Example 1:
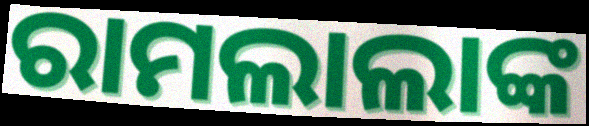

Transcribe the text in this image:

ରାମଲାଲାଙ୍କ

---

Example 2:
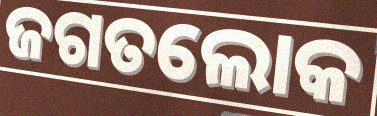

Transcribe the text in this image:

ଜଗତଲୋକ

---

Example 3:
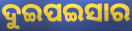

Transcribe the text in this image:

ଦୁଇପଇସାର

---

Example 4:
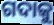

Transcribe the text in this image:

ଗଦାକୁ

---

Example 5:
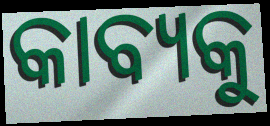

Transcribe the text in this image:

କାବ୍ୟକୁ